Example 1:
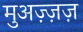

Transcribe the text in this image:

मुअज़्ज़ज़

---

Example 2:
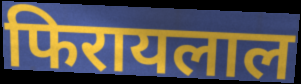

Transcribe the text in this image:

फिरायलाल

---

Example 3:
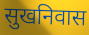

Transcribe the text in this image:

सुखनिवास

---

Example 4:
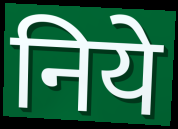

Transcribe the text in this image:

निये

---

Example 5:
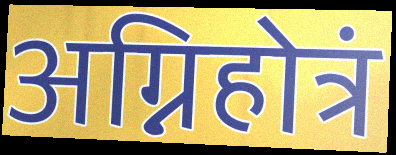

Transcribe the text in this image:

अग्निहोत्रं